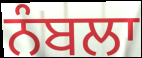
ਨੰਬਲਾ